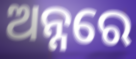
ଅନ୍ନରେ